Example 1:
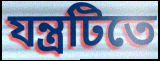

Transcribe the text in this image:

যন্ত্রটিতে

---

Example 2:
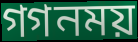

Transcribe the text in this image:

গগনময়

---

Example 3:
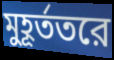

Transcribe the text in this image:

মুহূর্ততরে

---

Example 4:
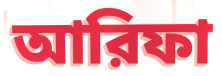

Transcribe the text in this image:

আরিফা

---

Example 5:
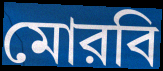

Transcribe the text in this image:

মোরবি